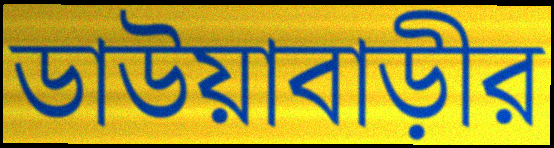
ডাউয়াবাড়ীর